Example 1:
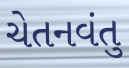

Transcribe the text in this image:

ચેતનવંતુ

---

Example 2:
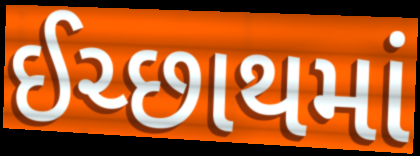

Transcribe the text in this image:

ઈચ્છાથમાં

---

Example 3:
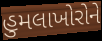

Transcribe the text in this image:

હુમલાખોરોને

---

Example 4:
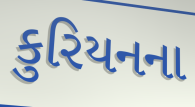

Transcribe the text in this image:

કુરિયનના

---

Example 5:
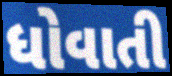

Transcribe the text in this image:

ધોવાતી